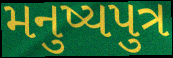
મનુષ્યપુત્ર